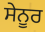
ਸੇਨੂਰ